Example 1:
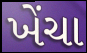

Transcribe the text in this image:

ખેંચા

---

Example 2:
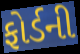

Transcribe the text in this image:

ફોર્ડની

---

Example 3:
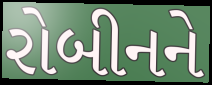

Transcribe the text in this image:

રોબીનને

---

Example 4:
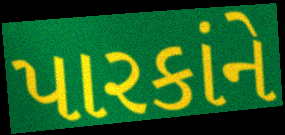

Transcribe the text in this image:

પારકાંને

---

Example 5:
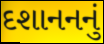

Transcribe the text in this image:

દશાનનનું